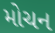
મોચન